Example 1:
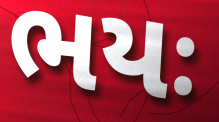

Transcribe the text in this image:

ભયઃ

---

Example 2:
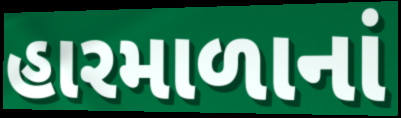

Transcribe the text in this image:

હારમાળાનાં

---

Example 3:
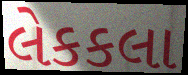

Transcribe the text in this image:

લેકકલા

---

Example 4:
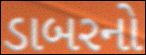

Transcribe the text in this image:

ડાબરનો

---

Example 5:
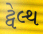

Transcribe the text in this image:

ટ્વેલ્થ